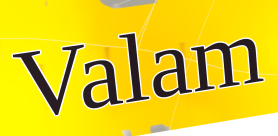
Valam